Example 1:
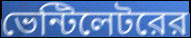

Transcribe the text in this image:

ভেন্টিলেটরের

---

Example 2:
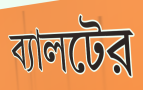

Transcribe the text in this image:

ব্যালটের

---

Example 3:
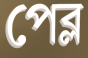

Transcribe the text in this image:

পেব্ল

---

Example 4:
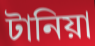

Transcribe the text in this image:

টানিয়া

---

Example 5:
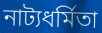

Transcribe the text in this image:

নাট্যধর্মিতা